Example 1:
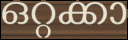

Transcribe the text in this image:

ഒറ്റക്കാ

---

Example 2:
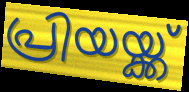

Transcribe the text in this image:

പ്രിയയ്ക്ക്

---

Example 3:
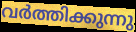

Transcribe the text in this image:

വർത്തിക്കുന്നു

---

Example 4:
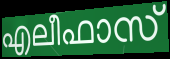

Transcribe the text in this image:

എലീഫാസ്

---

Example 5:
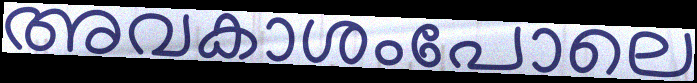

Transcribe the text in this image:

അവകാശംപോലെ